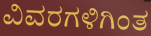
ವಿವರಗಳಿಗಿಂತ